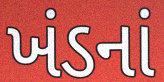
ખંડનાં